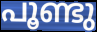
പൂണ്ടു